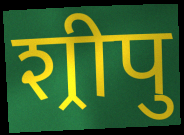
श्रीपु